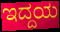
ಇದ್ದಯ